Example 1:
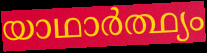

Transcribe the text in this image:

യാഥാർത്ഥ്യം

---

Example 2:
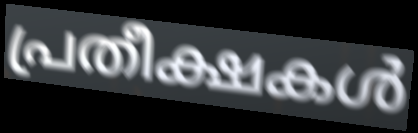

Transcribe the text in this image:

പ്രതീക്ഷകൾ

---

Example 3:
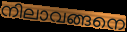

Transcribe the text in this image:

നിലാവങ്ങനെ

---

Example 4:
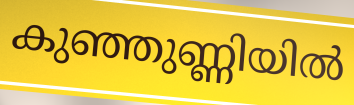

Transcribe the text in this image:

കുഞ്ഞുണ്ണിയിൽ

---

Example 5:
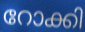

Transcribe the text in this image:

റോക്കി